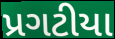
પ્રગટીયા